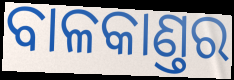
ବାଳକାଣ୍ତର